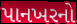
પાનખરનો